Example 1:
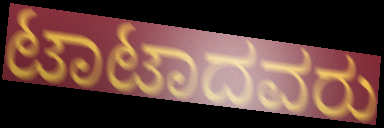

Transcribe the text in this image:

ಟಾಟಾದವರು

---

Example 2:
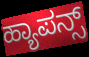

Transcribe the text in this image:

ಹ್ಯಾಪನ್ಸ್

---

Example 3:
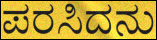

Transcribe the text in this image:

ಪರಸಿದನು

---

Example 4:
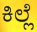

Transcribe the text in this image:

ಕಿಲ್ಲೆ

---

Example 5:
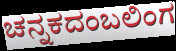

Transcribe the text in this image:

ಚನ್ನಕದಂಬಲಿಂಗ